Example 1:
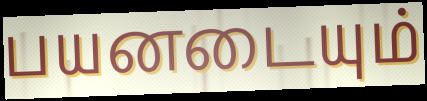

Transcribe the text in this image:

பயனடையும்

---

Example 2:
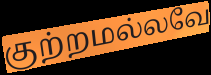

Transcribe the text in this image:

குற்றமல்லவே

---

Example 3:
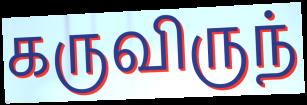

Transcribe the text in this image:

கருவிருந்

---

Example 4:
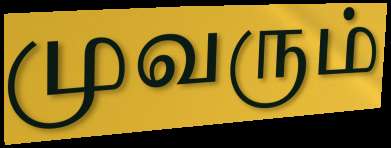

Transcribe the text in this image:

முவரும்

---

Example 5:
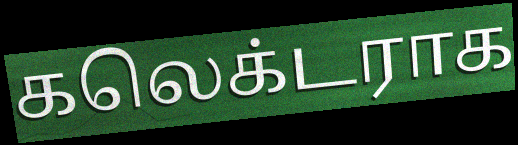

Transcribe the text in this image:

கலெக்டராக